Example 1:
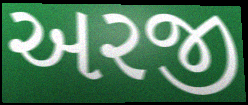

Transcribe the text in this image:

અરજી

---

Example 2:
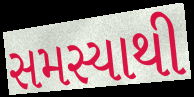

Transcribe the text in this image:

સમસ્યાથી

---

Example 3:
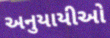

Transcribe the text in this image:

અનુયાયીઓ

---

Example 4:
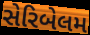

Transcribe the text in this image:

સેરિબેલમ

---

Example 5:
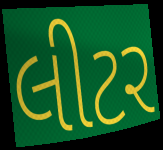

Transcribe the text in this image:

લીટર